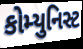
કોમ્યુનિસ્ટ